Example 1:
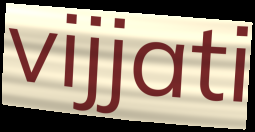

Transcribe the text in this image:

vijjati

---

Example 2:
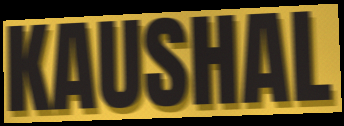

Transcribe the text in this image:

KAUSHAL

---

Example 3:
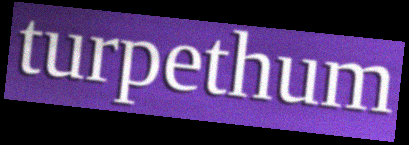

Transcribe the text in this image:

turpethum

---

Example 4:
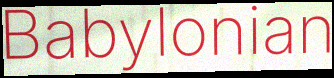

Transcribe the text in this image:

Babylonian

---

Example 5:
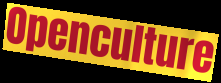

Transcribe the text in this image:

Openculture